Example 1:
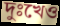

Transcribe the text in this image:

দুঃখেও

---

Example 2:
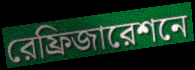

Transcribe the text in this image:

রেফ্রিজারেশনে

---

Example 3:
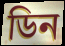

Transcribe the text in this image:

ডিন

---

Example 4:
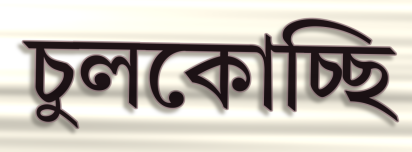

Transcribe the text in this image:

চুলকোচ্ছি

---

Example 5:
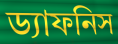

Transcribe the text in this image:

ড্যাফনিস